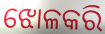
ଝୋଳକରି